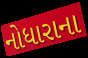
નોધારાના